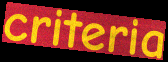
criteria